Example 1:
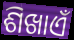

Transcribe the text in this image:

ଶିଖାଏଁ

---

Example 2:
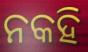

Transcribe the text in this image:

ନକହି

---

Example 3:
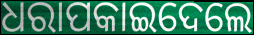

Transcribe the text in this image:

ଧରାପକାଇଦେଲେ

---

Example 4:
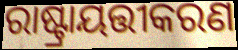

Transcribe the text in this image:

ରାଷ୍ଟ୍ରାୟତ୍ତୀକରଣ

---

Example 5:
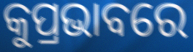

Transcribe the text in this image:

କୁପ୍ରଭାବରେ